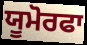
ਯੂਮੋਰਫਾ